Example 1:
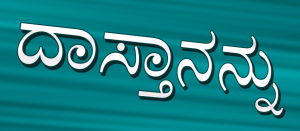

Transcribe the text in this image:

ದಾಸ್ತಾನನ್ನು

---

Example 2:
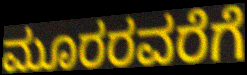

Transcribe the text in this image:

ಮೂರರವರೆಗೆ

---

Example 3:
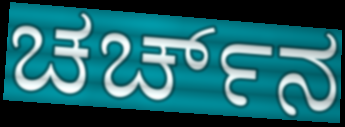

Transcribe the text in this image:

ಚರ್ಚ್‌ನ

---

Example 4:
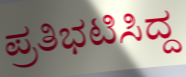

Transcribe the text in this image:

ಪ್ರತಿಭಟಿಸಿದ್ದ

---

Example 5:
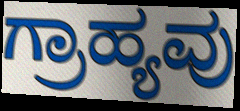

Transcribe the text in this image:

ಗ್ರಾಹ್ಯವು